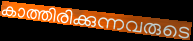
കാത്തിരിക്കുന്നവരുടെ